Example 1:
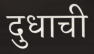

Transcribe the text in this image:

दुधाची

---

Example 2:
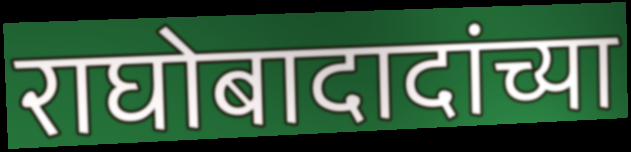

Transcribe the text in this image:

राघोबादादांच्या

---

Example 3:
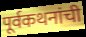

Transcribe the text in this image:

पूर्वकथनांची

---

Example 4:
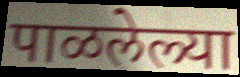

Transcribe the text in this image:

पाळलेल्या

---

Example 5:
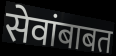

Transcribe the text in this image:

सेवांबाबत